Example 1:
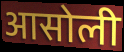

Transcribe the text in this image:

आसोली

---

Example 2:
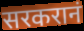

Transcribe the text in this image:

सरकरानं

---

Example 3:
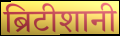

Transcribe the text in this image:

ब्रिटीशानी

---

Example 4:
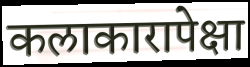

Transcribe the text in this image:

कलाकारापेक्षा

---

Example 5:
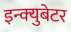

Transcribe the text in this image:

इन्क्‍युबेटर